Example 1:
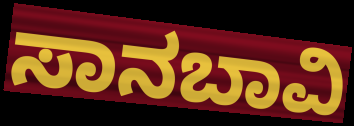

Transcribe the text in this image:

ಸಾನಬಾವಿ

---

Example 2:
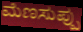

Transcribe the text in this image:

ಮೆಣಸುಪ್ಪು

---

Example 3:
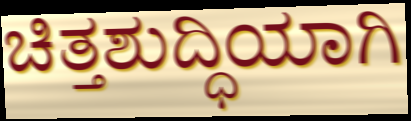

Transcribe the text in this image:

ಚಿತ್ತಶುದ್ಧಿಯಾಗಿ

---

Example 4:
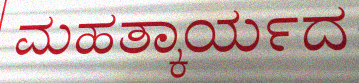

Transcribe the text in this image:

ಮಹತ್ಕಾರ್ಯದ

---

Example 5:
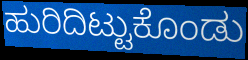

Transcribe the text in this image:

ಹುರಿದಿಟ್ಟುಕೊಂಡು